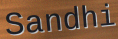
Sandhi